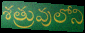
శత్రువులోని